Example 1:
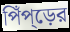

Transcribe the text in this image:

পিঁপ্ড়ের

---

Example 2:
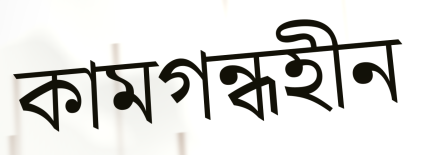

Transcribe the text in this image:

কামগন্ধহীন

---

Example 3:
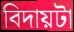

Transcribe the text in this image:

বিদায়টা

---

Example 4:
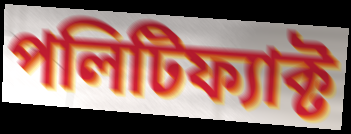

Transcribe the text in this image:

পলিটিফ্যাক্ট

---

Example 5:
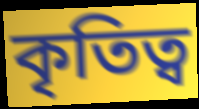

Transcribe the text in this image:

কৃতিত্ব